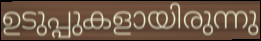
ഉടുപ്പുകളായിരുന്നു